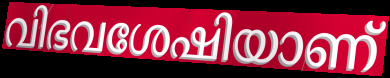
വിഭവശേഷിയാണ്